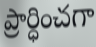
ప్రార్ధించగా